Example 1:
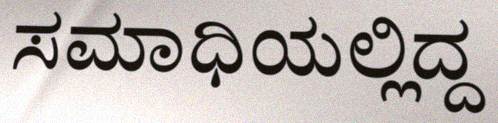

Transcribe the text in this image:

ಸಮಾಧಿಯಲ್ಲಿದ್ದ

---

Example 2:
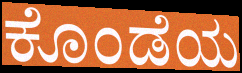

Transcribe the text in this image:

ಕೊಂಡೆಯ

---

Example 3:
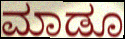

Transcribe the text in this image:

ಮಾಡೂ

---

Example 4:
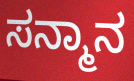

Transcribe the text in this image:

ಸನ್ಮಾನ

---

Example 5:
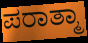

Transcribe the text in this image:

ಪರಾತ್ಮಾ